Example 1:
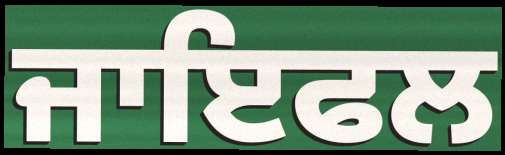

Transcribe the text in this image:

ਜਾਇਫਲ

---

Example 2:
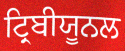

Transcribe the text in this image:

ਟ੍ਰਿਬੀਯੂਨਲ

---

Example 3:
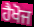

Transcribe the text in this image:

ਹੈਖੋਜ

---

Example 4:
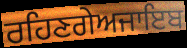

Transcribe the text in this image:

ਰਹਿਣਗੇਅਜਾਇਬ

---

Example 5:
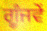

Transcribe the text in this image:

ਗੂੰਜਵੇਂ